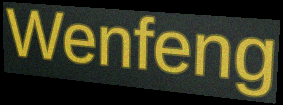
Wenfeng